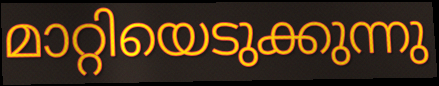
മാറ്റിയെടുക്കുന്നു